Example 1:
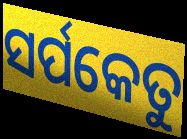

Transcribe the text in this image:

ସର୍ପକେତୁ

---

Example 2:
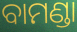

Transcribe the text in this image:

ବାମଣ୍ଡା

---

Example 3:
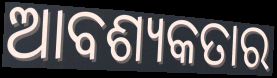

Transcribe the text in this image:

ଆବଶ୍ୟକତାର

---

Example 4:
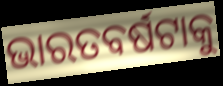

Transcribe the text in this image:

ଭାରତବର୍ଷଟାକୁ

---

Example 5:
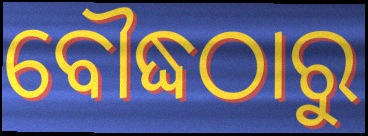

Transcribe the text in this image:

ବୌଦ୍ଧଠାରୁ